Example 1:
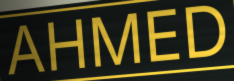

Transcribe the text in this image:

AHMED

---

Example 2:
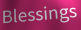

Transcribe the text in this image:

Blessings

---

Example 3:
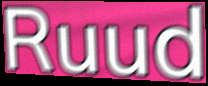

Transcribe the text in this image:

Ruud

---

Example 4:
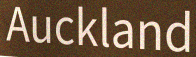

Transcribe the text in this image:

Auckland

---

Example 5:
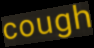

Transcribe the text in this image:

cough